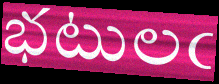
భటులఁ